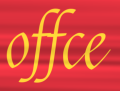
offce